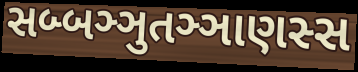
સબ્બઞ્ઞુતઞ્ઞાણસ્સ